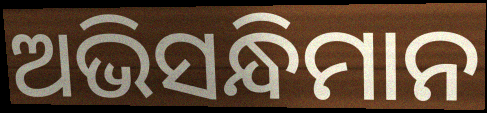
ଅଭିସନ୍ଧିମାନ